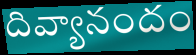
దివ్యానందం